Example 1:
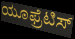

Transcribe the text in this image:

ಯೂಫ್ರೆಟಿಸ್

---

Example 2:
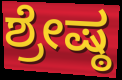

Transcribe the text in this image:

ಶ್ರೇಷ್ಠ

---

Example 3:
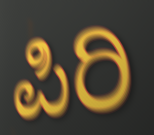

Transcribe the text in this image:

ಪಿರಿ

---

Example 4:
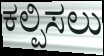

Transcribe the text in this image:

ಕಲ್ಪಿಸಲು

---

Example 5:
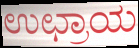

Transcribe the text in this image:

ಉಛ್ರಾಯ